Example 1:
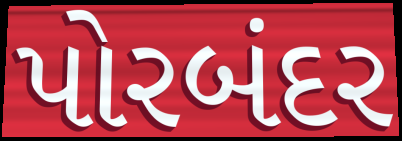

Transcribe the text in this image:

પોરબંદર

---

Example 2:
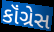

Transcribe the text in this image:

કૉંગ્રેસ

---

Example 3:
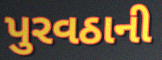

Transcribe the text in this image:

પુરવઠાની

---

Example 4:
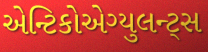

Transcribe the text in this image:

એન્ટિકોએગ્યુલન્ટ્સ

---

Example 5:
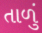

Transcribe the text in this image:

તાળું